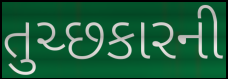
તુચ્છકારની